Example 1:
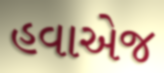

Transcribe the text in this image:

હવાએજ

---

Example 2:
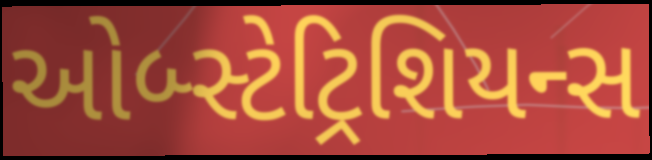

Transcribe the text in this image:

ઓબ્સ્ટેટ્રિશિયન્સ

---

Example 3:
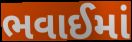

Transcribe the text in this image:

ભવાઈમાં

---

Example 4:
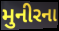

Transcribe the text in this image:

મુનીરના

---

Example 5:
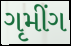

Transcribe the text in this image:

ગૃમીંગ